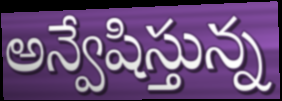
అన్వేషిస్తున్న